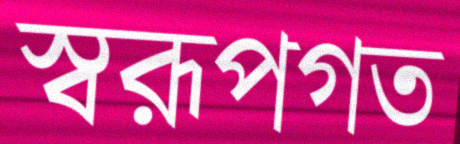
স্বরূপগত